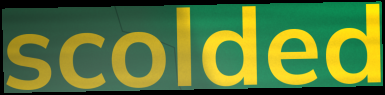
scolded